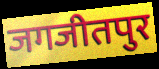
जगजीतपुर